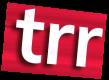
trr